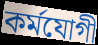
কর্মযোগী